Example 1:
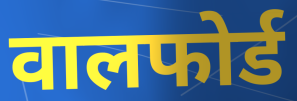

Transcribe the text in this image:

वालफोर्ड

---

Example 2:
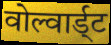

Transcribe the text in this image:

वोल्वार्ड्ट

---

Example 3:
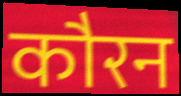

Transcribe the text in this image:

कौरन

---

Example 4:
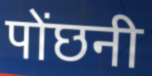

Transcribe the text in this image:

पोंछनी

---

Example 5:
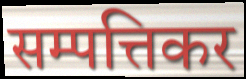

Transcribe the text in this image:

सम्पत्तिकर